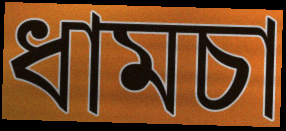
ধামচা